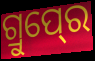
ଗ୍ରୁପ୍‍ରେ